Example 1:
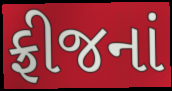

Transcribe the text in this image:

ફ્રીજનાં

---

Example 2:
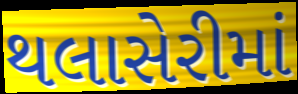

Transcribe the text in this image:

થલાસેરીમાં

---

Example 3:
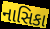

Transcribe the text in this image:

નાસિકા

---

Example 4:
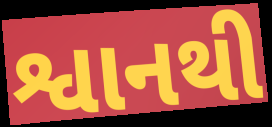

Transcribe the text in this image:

શ્વાનથી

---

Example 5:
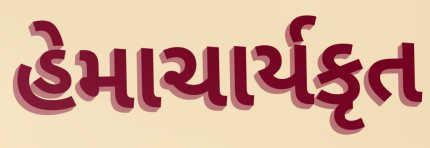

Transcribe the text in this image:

હેમાચાર્યકૃત